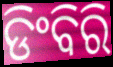
ଡିଂବିରି